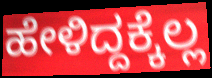
ಹೇಳಿದ್ದಕ್ಕೆಲ್ಲ